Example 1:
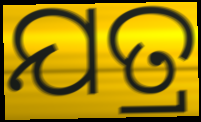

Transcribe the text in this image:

ଯତ୍ର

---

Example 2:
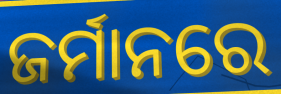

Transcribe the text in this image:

ଜର୍ମାନରେ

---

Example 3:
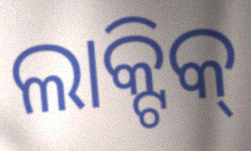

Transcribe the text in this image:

ଲାକ୍ଟିକ୍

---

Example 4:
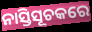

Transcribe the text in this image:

ନାସ୍ତିସୂଚକରେ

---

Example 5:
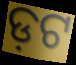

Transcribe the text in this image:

ଡ଼ଟ